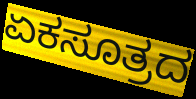
ಏಕಸೂತ್ರದ